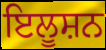
ਇਲੂਸ਼ਨ